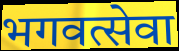
भगवत्सेवा